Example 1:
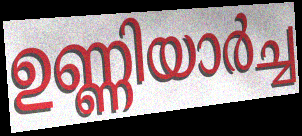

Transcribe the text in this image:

ഉണ്ണിയാർച്ച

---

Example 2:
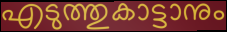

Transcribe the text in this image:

എടുത്തുകാട്ടാനും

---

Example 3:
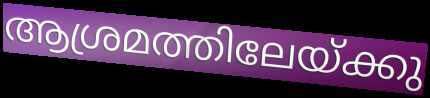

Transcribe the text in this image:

ആശ്രമത്തിലേയ്ക്കു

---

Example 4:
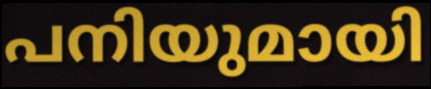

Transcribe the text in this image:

പനിയുമായി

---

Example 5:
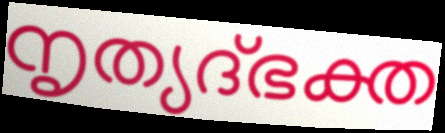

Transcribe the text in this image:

നൃത്യദ്ഭക്ത